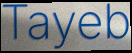
Tayeb